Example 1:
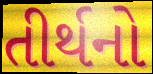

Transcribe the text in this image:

તીર્થનો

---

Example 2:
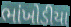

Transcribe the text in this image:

ભાંખોડીયા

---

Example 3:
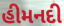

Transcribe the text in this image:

હીમનદી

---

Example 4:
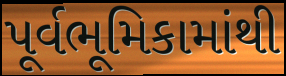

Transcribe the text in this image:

પૂર્વભૂમિકામાંથી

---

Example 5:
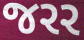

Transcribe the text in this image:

જરર